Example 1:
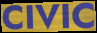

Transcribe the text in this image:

CIVIC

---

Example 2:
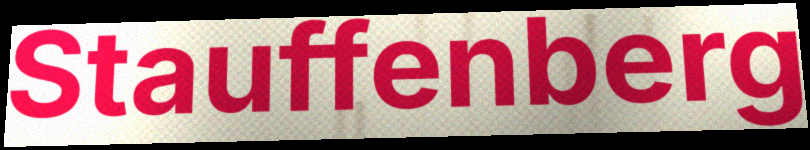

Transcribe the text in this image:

Stauffenberg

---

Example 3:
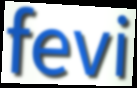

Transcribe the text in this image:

fevi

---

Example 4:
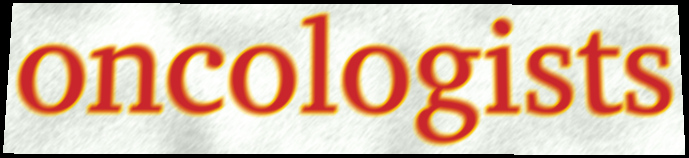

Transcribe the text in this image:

oncologists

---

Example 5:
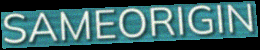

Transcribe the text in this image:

SAMEORIGIN